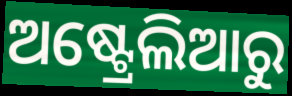
ଅଷ୍ଟ୍ରେଲିଆରୁ